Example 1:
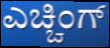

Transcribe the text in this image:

ಎಚ್ಚಿಂಗ್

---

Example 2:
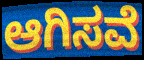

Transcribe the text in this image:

ಆಗಿಸವೆ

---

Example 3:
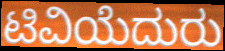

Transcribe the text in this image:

ಟಿವಿಯೆದುರು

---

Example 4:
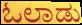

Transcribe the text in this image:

ಓಲಾಡು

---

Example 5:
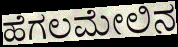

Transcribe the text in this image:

ಹೆಗಲಮೇಲಿನ